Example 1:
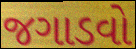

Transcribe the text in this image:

જગાડવો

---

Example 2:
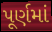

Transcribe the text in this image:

પૂર્ણમાં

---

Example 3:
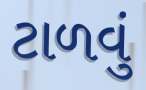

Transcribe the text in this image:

ટાળવું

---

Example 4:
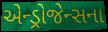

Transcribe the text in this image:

એન્ડ્રોજેન્સના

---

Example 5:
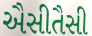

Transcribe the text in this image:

ઐસીતૈસી